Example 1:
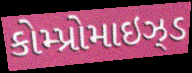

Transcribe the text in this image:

કોમ્પ્રોમાઇઝ્ડ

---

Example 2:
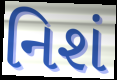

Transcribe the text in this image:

નિશં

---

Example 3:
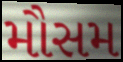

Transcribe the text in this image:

મૌસમ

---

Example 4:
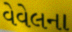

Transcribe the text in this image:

વેવેલના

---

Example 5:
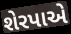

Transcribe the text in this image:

શેરપાએ